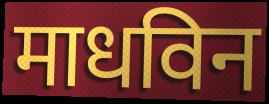
माधविन